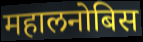
महालनोबिस